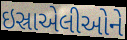
ઇસ્રાએલીઓને